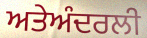
ਅਤੇਅੰਦਰਲੀ